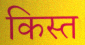
किस्त